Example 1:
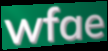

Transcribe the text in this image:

wfae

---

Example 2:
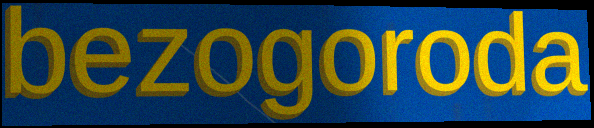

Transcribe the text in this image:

bezogoroda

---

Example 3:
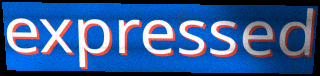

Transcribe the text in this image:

expressed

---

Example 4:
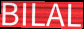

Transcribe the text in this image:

BILAL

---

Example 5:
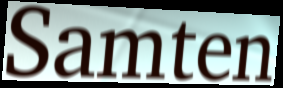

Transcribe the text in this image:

Samten